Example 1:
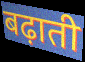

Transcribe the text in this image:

बढ़ाती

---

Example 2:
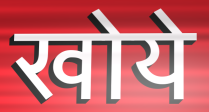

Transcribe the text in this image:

खोये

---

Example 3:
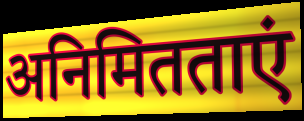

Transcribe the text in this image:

अनिमितताएं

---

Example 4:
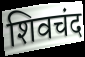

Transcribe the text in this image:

शिवचंद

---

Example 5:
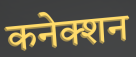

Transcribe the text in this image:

कनेक्‍शन